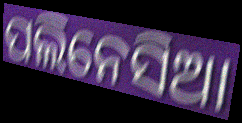
ପଲିନେସିଆ